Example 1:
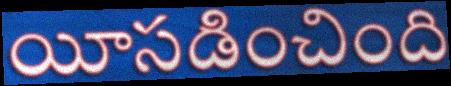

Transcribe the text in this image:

యీసడించింది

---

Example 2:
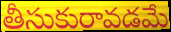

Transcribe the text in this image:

తీసుకురావడమే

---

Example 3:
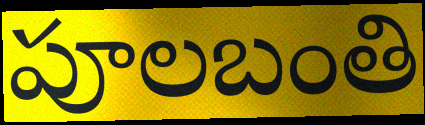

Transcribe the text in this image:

పూలబంతి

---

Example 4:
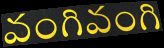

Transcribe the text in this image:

వంగివంగి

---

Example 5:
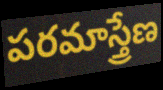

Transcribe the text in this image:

పరమాస్త్రేణ